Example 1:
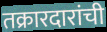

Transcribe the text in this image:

तक्रारदारांची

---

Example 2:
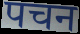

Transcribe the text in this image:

पचन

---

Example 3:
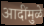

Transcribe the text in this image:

आदींमुळे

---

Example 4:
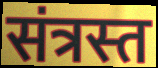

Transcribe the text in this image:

संत्रस्त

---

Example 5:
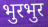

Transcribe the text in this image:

भुरभुर